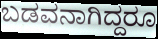
ಬಡವನಾಗಿದ್ದರೂ